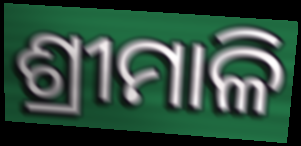
ଶ୍ରୀମାଳି